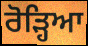
ਰੋੜ੍ਹਿਆ